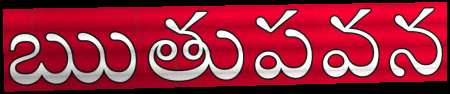
ఋతుపవన